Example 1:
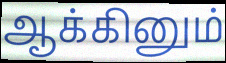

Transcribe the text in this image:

ஆக்கினும்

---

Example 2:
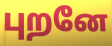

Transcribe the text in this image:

புறனே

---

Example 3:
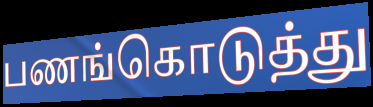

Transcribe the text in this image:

பணங்கொடுத்து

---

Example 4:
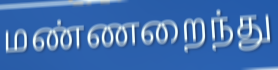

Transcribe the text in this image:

மண்ணறைந்து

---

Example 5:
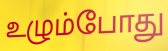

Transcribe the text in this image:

உழும்போது